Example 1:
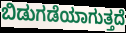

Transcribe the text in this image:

ಬಿಡುಗಡೆಯಾಗುತ್ತದೆ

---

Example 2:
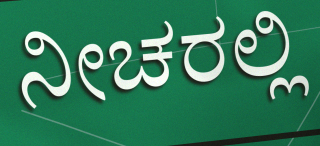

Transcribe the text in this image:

ನೀಚರಲ್ಲಿ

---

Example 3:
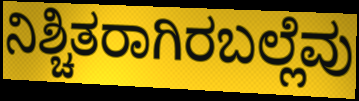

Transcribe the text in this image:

ನಿಶ್ಚಿತರಾಗಿರಬಲ್ಲೆವು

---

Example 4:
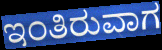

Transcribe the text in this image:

ಇಂತಿರುವಾಗ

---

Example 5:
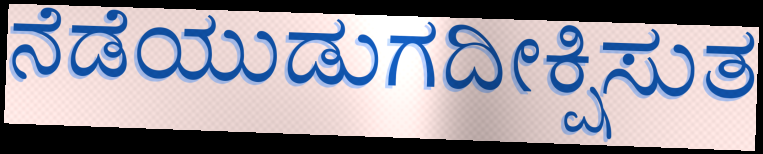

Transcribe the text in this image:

ನೆಡೆಯುಡುಗದೀಕ್ಷಿಸುತ